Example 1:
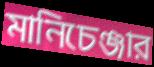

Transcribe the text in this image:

মানিচেঞ্জার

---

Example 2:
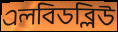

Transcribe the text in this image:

এলবিডব্লিউ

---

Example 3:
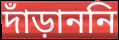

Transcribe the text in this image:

দাঁড়াননি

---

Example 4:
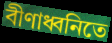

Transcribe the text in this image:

বীণাধ্বনিতে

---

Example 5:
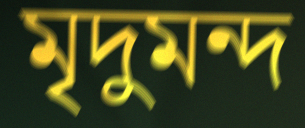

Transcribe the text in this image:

মৃদুমন্দ